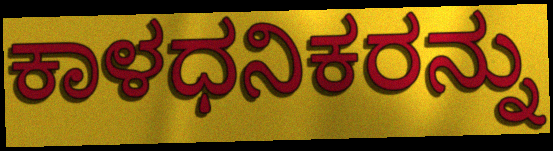
ಕಾಳಧನಿಕರನ್ನು